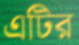
এটির